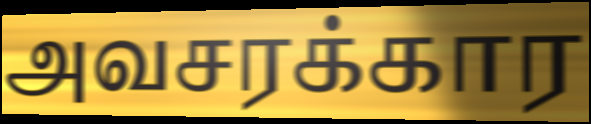
அவசரக்கார